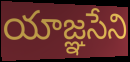
యాజ్ఞసేని